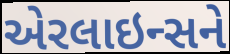
એરલાઇન્સને